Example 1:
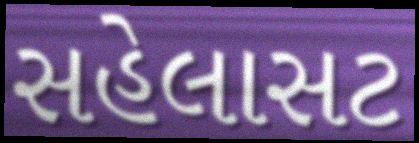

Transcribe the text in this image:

સહેલાસટ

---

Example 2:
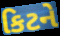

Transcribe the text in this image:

કિટને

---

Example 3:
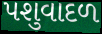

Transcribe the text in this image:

પશુવાદળ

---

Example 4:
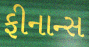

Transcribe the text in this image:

ફીનાન્સ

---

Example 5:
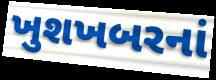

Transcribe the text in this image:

ખુશખબરનાં